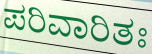
ಪರಿವಾರಿತಃ